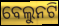
ବେଲୁନଟି